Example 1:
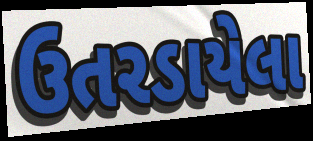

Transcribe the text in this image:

ઉતરડાયેલા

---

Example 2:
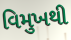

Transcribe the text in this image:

વિમુખથી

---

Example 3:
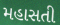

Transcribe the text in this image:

મહાસતી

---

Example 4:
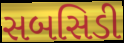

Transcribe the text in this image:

સબસિડી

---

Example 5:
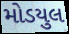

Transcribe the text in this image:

મોડયુલ